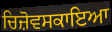
ਚਿਜ਼ੋਵਸਕਾਇਆ